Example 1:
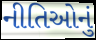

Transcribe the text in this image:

નીતિઓનું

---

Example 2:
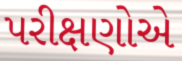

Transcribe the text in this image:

પરીક્ષણોએ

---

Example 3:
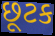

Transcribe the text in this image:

છૂટક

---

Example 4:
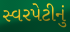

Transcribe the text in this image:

સ્વરપેટીનું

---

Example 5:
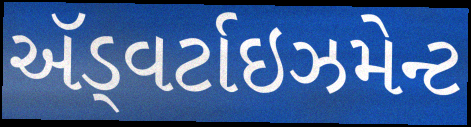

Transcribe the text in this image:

ઍડ્વર્ટાઇઝમેન્ટ